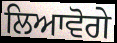
ਲਿਆਵੋਗੇ